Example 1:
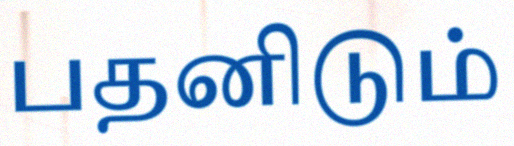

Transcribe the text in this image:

பதனிடும்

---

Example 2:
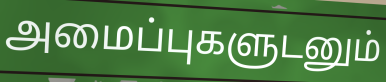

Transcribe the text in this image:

அமைப்புகளுடனும்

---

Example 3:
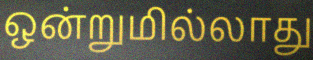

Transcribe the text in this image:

ஒன்றுமில்லாது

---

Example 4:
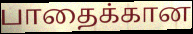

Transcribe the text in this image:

பாதைக்கான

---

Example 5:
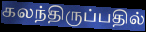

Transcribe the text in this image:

கலந்திருப்பதில்